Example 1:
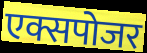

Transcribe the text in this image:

एक्सपोजर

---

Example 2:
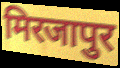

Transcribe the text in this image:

मिरजापुर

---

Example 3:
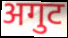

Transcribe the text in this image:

अगुट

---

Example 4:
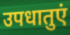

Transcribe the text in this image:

उपधातुएं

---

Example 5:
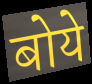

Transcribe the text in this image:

बोये